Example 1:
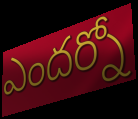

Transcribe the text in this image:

ఎందర్నో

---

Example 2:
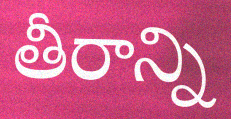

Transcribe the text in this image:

తీరాన్ని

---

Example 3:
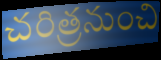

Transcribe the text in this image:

చరిత్రనుంచి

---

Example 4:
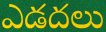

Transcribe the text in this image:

ఎడదలు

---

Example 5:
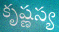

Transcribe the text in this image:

కృష్ణస్య